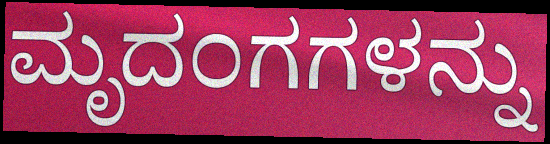
ಮೃದಂಗಗಳನ್ನು